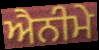
ਐਨੀਮੇ